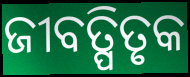
ଜୀବତ୍ପିତୃକ